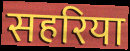
सहरिया